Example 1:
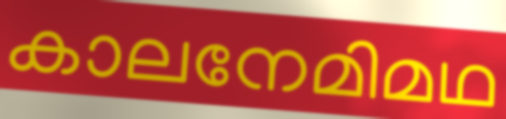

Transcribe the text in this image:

കാലനേമിമഥ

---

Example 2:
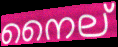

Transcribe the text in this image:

നൈല്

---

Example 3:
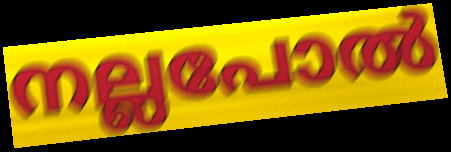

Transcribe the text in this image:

നല്ലപോൽ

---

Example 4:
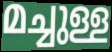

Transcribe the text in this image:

മച്ചുള്ള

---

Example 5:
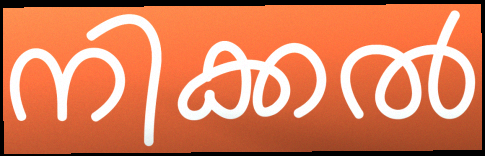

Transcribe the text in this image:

നിക്കൽ